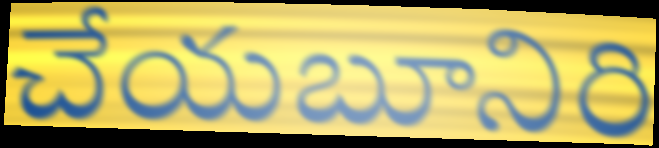
చేయబూనిరి